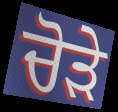
ਚੋੜੇ